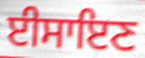
ਈਸਾਇਣ